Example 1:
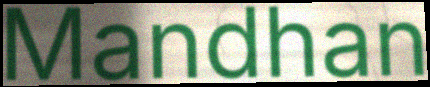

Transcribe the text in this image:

Mandhan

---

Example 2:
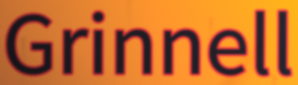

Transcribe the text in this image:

Grinnell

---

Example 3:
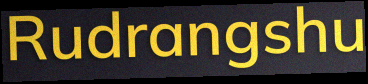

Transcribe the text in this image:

Rudrangshu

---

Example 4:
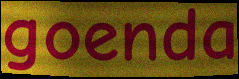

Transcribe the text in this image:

goenda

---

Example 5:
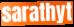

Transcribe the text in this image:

sarathyt